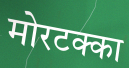
मोरटक्का